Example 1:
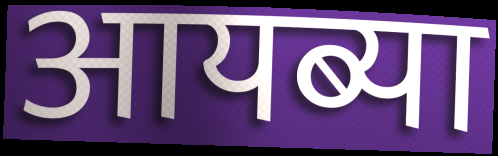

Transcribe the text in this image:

आयब्या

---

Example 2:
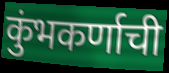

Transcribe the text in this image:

कुंभकर्णाची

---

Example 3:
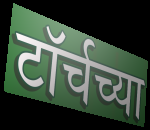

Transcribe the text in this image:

टॉर्चच्या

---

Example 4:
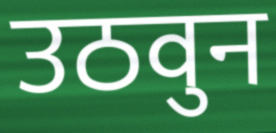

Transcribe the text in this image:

उठवुन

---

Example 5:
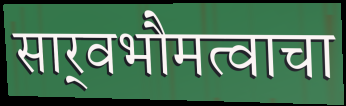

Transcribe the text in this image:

सार्वभौमत्वाचा